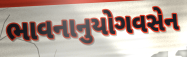
ભાવનાનુયોગવસેન